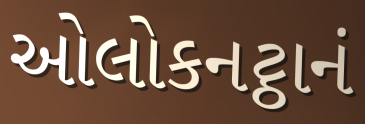
ઓલોકનટ્ઠાનં